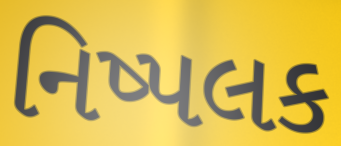
નિષ્પલક